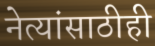
नेत्यांसाठीही